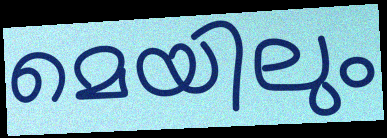
മെയിലും